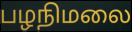
பழநிமலை